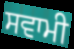
ਸਵਾਮੀ